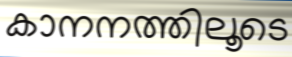
കാനനത്തിലൂടെ